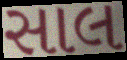
સાલ